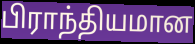
பிராந்தியமான